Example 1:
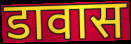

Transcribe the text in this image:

डावास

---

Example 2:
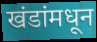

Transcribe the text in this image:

खंडांमधून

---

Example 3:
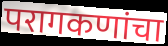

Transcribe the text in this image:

परागकणांचा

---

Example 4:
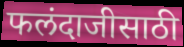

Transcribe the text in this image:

फलंदाजीसाठी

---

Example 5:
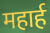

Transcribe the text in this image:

महार्ह